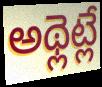
అథ్లెట్లే